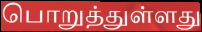
பொறுத்துள்ளது